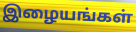
இழையங்கள்